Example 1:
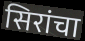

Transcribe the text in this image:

सिरांचा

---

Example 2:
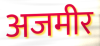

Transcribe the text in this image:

अजमीर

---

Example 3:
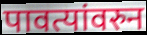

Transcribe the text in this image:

पावत्यांवरुन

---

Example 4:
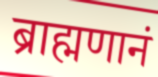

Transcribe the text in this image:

ब्राह्मणानं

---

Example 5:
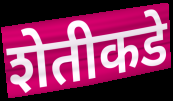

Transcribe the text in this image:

शेतीकडे